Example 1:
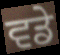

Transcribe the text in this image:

ਵਡੇ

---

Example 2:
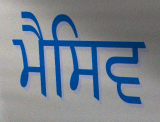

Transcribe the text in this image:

ਮੈਸਿਵ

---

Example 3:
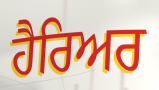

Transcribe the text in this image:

ਹੈਰਿਅਰ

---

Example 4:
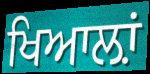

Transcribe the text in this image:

ਖਿਆਲ਼ਾਂ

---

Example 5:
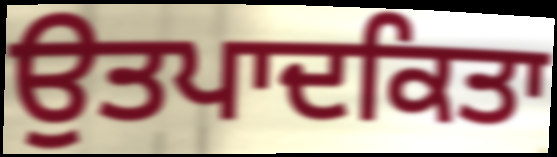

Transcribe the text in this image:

ਉਤਪਾਦਕਿਤਾ